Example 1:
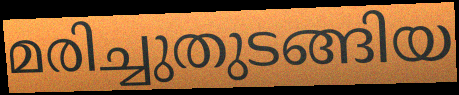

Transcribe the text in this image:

മരിച്ചുതുടങ്ങിയ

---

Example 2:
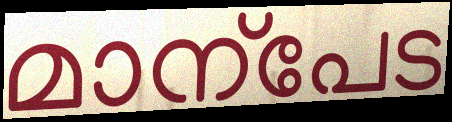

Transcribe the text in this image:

മാന്പേട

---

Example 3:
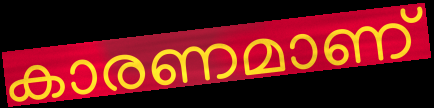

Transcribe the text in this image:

കാരണമാണ്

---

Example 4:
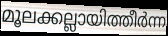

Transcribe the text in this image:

മൂലക്കല്ലായിത്തീർന്ന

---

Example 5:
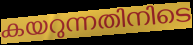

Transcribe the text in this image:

കയറുന്നതിനിടെ